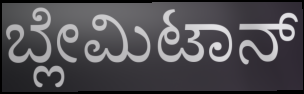
ಬ್ಲೇಮಿಟಾನ್